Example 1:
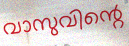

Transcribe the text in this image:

വാസുവിന്റെ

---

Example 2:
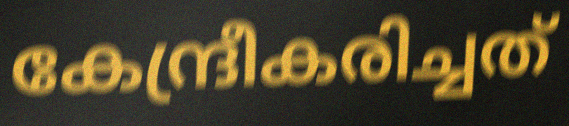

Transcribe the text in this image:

കേന്ദ്രീകരിച്ചത്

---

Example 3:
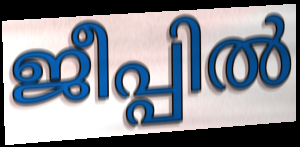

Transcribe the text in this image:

ജീപ്പിൽ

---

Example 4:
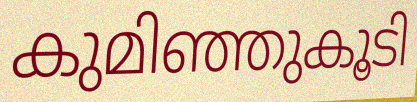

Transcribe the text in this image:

കുമിഞ്ഞുകൂടി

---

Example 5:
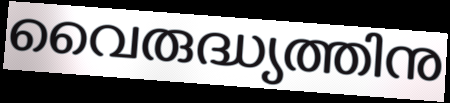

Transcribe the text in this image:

വൈരുദ്ധ്യത്തിനു